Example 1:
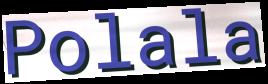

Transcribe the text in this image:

Polala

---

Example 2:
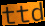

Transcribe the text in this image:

ttd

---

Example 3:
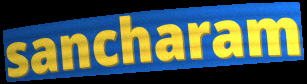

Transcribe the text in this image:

sancharam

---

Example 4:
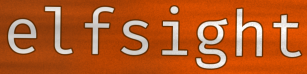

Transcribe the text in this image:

elfsight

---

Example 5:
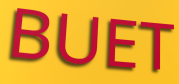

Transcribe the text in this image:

BUET